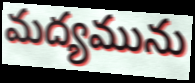
మద్యమును